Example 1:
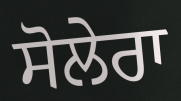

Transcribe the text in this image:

ਸੋਲੇਰਾ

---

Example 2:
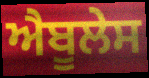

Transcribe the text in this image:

ਐਬੂਲੇਸ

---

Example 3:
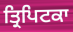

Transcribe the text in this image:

ਤ੍ਰਿਪਿਟਕਾ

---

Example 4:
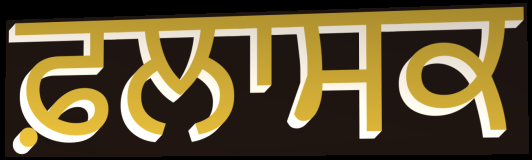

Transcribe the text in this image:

ਫ਼ਲਾਸਕ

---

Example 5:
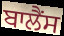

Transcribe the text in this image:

ਬਾਲੈਂਸ